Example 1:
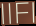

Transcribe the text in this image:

IIFI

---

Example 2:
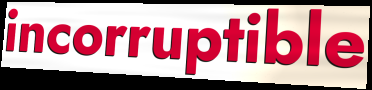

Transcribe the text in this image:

incorruptible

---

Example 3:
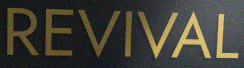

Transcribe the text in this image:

REVIVAL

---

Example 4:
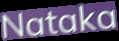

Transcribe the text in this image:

Nataka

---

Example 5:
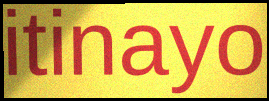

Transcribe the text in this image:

itinayo